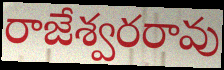
రాజేశ్వరరావు